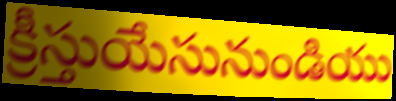
క్రీస్తుయేసునుండియు